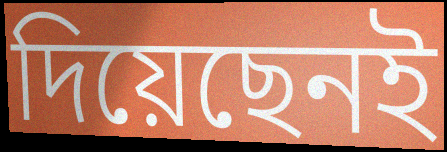
দিয়েছেনই